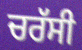
ਚਰੱਸੀ